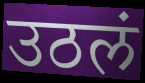
उठलं